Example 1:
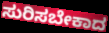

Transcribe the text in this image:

ಸುರಿಸಬೇಕಾದ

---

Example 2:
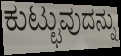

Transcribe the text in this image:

ಕುಟ್ಟುವುದನ್ನು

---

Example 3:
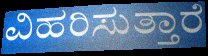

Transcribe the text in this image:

ವಿಹರಿಸುತ್ತಾರೆ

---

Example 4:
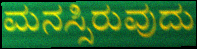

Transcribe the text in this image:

ಮನಸ್ಸಿರುವುದು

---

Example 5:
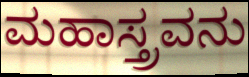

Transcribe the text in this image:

ಮಹಾಸ್ತ್ರವನು